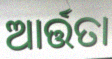
ଆର୍ତ୍ତତା